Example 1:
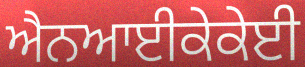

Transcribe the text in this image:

ਐਨਆਈਕੇਕੇਈ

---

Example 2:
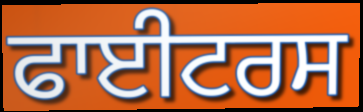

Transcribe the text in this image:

ਫਾਈਟਰਸ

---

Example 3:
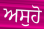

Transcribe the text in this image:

ਅਸੁਹੋ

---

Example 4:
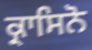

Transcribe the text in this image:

ਕ੍ਰਾਸਿਨੋ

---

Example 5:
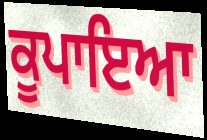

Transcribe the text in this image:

ਕੂਪਾਇਆ